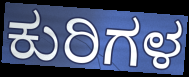
ಕುರಿಗಳ